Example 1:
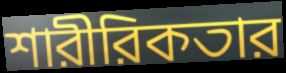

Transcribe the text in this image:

শারীরিকতার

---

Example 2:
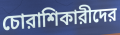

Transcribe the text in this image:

চোরাশিকারীদের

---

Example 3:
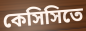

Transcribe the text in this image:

কেসিসিতে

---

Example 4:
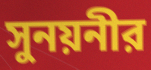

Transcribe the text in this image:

সুনয়নীর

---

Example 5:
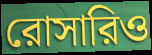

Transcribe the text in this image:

রোসারিও